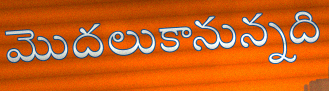
మొదలుకానున్నది